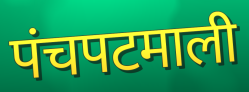
पंचपटमाली